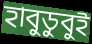
হাবুডুবুই